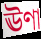
ঊণা